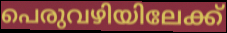
പെരുവഴിയിലേക്ക്